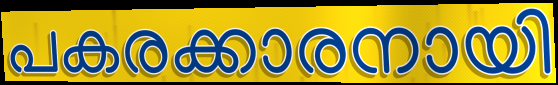
പകരക്കാരനായി